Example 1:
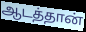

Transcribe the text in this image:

ஆடத்தான்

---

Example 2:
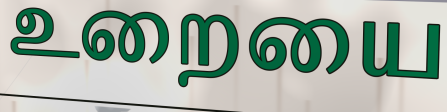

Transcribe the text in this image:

உறையை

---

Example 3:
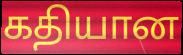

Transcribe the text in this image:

கதியான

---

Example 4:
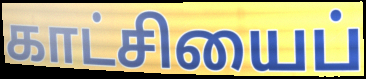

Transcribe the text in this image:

காட்சியைப்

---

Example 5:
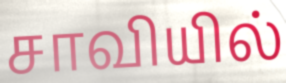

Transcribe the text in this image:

சாவியில்